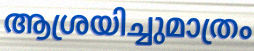
ആശ്രയിച്ചുമാത്രം